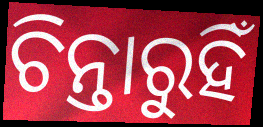
ଚିନ୍ତାରୁହିଁ